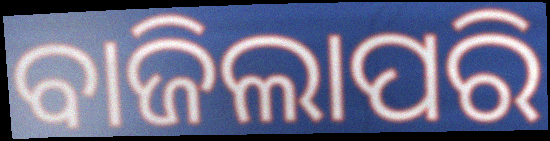
ବାଜିଲାପରି